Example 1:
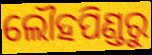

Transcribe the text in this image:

ଲୌହପିଣ୍ଡରୁ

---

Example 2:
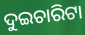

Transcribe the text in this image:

ଦୁଇଚାରିଟା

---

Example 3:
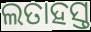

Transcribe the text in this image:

ଲତାହସ୍ତ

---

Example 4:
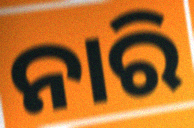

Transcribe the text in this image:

ନାରି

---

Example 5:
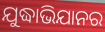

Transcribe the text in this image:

ଯୁଦ୍ଧାଭିଯାନର